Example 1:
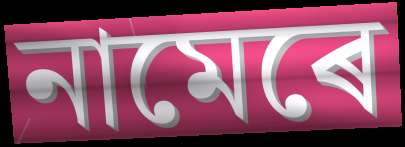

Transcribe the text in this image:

নামেৰে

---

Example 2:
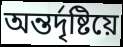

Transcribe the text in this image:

অন্তৰ্দৃষ্টিয়ে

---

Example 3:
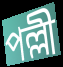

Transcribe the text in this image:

পল্লী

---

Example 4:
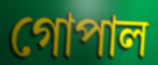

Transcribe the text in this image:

গোপাল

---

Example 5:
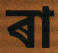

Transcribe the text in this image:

ৰা